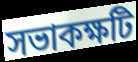
সভাকক্ষটি